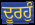
ਦੂਰਹੁੰ